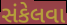
સંકેલવા